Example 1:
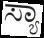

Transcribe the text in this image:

ಸ್ಯಾ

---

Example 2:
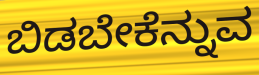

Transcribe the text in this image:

ಬಿಡಬೇಕೆನ್ನುವ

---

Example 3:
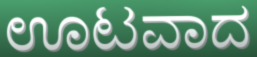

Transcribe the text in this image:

ಊಟವಾದ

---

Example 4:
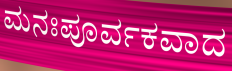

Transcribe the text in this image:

ಮನಃಪೂರ್ವಕವಾದ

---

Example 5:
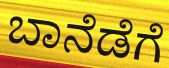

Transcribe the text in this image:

ಬಾನೆಡೆಗೆ